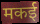
मकई